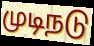
முடிநடு